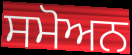
ਸਮੋਅਨ